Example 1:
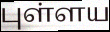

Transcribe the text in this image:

புள்ளய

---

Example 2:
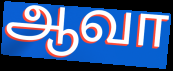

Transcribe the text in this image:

ஆவா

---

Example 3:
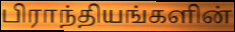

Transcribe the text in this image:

பிராந்தியங்களின்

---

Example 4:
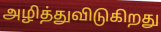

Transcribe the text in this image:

அழித்துவிடுகிறது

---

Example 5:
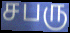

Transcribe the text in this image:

சபரு